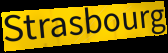
Strasbourg